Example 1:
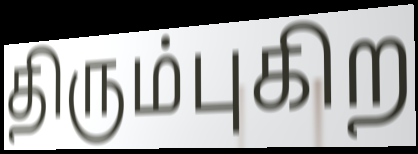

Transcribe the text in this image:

திரும்புகிற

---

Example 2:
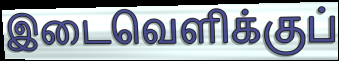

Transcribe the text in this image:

இடைவெளிக்குப்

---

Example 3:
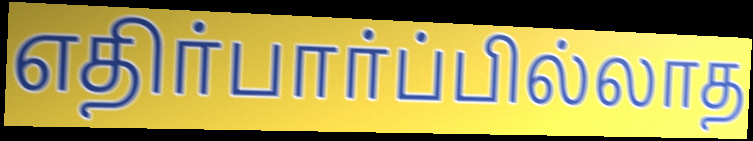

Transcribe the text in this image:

எதிர்பார்ப்பில்லாத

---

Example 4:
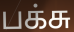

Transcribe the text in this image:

பக்சு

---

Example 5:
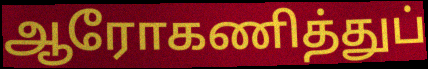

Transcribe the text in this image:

ஆரோகணித்துப்